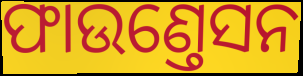
ଫାଉଣ୍ତେସନ